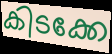
കിടക്കേ